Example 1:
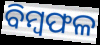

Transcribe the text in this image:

ବିମ୍ୱଫଳ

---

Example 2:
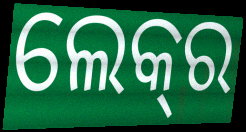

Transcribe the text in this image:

ଲେକ୍‍ର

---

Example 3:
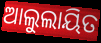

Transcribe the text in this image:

ଆଲୁଲାୟିତ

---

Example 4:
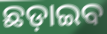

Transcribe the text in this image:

ଛଡ଼ାଇବ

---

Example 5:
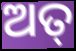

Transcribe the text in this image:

ଅତ୍